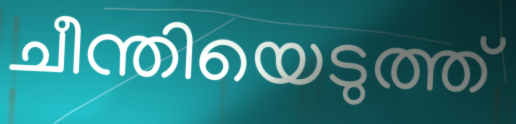
ചീന്തിയെടുത്ത്